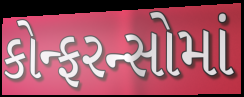
કોન્ફરન્સોમાં